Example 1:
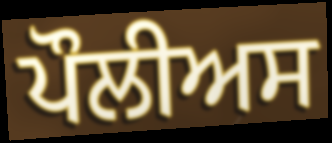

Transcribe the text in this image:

ਪੌਲੀਅਸ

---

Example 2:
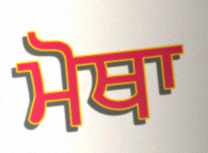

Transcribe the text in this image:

ਮੋਥਾ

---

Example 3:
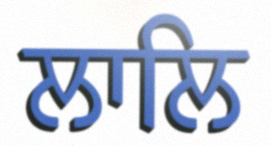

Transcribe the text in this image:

ਲਾਲਿ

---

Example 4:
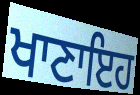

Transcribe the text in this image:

ਖਾਣਾਇਹ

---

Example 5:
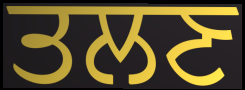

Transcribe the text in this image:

ਤਲਣ